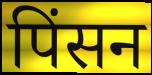
पिंसन